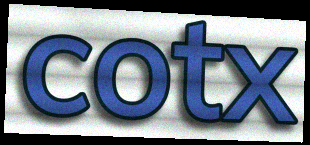
cotx